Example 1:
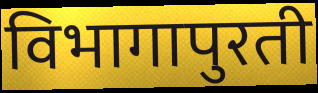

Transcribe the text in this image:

विभागापुरती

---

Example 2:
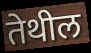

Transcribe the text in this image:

तेथील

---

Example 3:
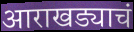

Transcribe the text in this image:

आराखड्याचं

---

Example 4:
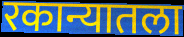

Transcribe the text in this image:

रकान्यातला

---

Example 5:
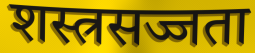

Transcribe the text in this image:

शस्त्रसज्जता